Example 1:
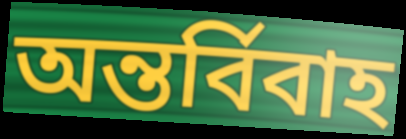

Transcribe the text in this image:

অন্তর্বিবাহ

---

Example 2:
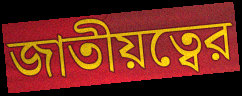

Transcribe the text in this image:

জাতীয়ত্বের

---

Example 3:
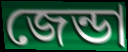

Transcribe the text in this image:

জেন্ডা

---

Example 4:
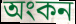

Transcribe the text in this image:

অংকন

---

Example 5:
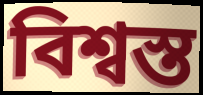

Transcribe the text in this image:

বিশ্বস্ত